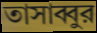
তাসাব্বুর